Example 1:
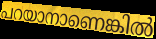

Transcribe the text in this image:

പറയാനാണെങ്കിൽ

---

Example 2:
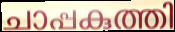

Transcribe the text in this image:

ചാപ്പകുത്തി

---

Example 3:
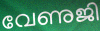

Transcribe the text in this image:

വേണുജി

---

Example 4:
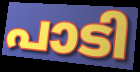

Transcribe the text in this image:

പാടി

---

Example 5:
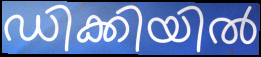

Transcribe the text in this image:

ഡിക്കിയിൽ